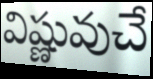
విష్ణువుచే